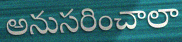
అనుసరించాలా